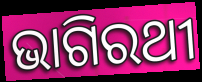
ଭାଗିରଥୀ